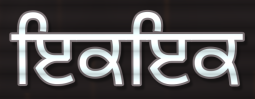
ਇਕਇਕ